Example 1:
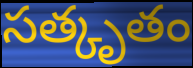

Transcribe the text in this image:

సత్కృతం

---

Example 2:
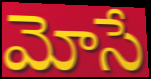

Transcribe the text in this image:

మోసే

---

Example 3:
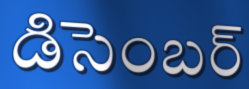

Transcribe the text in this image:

డిసెంబర్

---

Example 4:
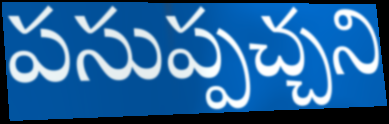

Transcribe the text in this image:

పసుప్పచ్చని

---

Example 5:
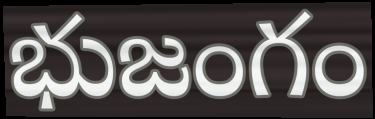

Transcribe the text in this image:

భుజంగం